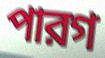
পারগ